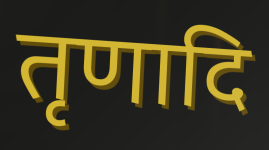
तृणादि